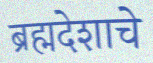
ब्रह्मदेशाचे